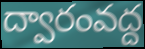
ద్వారంవద్ద